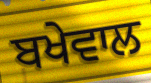
ਬਖੇਵਾਲ